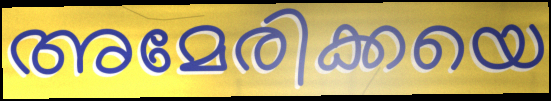
അമേരിക്കയെ